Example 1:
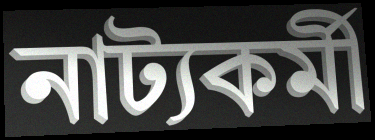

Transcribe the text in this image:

নাট্যকৰ্মী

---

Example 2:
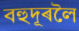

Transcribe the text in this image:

বহুদূৰলৈ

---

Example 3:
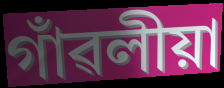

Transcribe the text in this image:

গাঁৱলীয়া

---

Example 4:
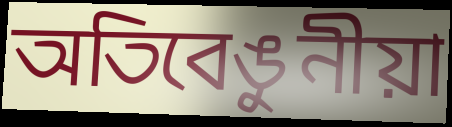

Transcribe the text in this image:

অতিবেঙুনীয়া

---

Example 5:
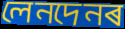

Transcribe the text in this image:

লেনদেনৰ